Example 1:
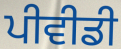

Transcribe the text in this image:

ਪੀਵੀਡੀ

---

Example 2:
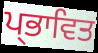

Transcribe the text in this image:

ਪ੍ਭਾਵਿਤ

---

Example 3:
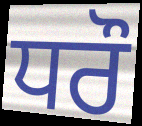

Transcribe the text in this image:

ਧਰੌ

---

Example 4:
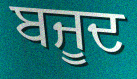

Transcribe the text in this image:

ਬਜੂਦ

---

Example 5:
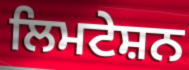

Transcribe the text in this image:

ਲਿਮਟੇਸ਼ਨ